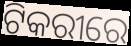
ଟିକରୀରେ